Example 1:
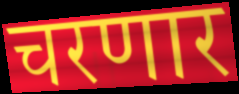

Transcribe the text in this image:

चरणार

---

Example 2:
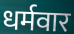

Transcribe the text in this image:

धर्मवार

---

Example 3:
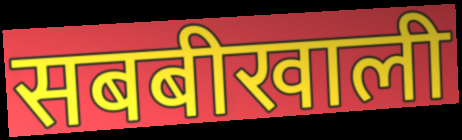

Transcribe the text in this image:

सबबीखाली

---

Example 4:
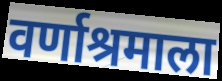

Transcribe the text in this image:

वर्णाश्रमाला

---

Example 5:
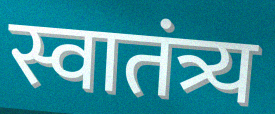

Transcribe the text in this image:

स्वातंत्र्य